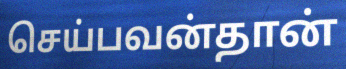
செய்பவன்தான்